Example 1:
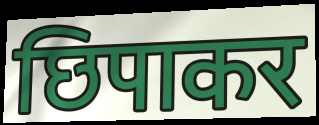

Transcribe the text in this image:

छिपाकर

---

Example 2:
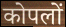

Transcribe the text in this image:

कोपलों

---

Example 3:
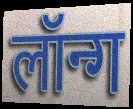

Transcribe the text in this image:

लॉन्ग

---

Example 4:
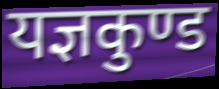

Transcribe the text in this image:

यज्ञकुण्ड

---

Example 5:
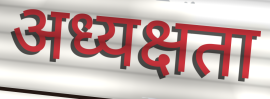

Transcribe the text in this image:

अध्यक्षता